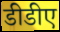
डीडीए